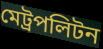
মেট্রপলিটন